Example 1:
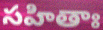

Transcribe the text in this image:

సహితాః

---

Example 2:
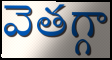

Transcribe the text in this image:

వెతగ్గా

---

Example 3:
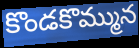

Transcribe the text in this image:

కొండకొమ్మున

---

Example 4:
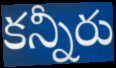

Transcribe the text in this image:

కన్నీరు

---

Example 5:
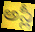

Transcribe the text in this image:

అస్లీ